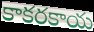
కాకరకాయ